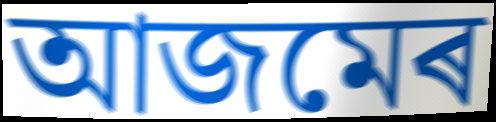
আজমেৰ